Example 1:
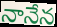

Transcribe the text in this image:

నానేన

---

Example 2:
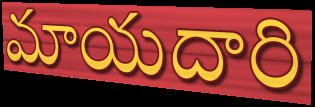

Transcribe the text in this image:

మాయదారి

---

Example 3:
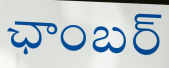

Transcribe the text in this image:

ఛాంబర్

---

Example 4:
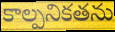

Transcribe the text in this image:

కాల్పనికతను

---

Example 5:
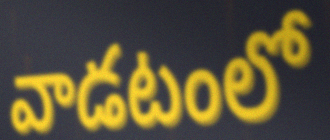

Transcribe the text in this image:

వాడటంలో